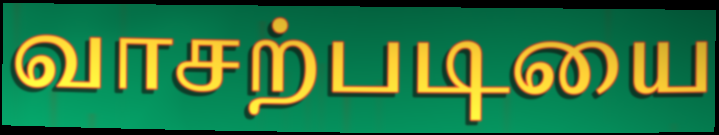
வாசற்படியை